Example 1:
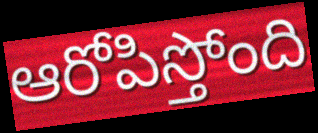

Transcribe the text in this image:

ఆరోపిస్తోంది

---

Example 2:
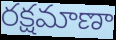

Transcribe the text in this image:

రక్షమాణా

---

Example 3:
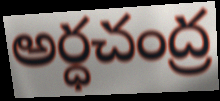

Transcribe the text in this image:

అర్ధచంద్ర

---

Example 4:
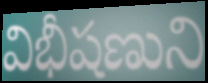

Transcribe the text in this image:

విభీషణుని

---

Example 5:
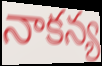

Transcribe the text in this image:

నాకన్య